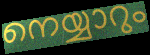
നെയ്യാറും